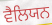
ਵੈਲਿਯਨ